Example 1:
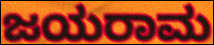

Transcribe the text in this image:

ಜಯರಾಮ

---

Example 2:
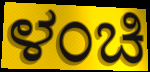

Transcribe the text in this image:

ಳಂಚಿ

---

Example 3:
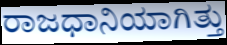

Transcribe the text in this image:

ರಾಜಧಾನಿಯಾಗಿತ್ತು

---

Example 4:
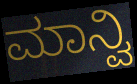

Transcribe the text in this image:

ಮಾನ್ವಿ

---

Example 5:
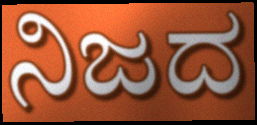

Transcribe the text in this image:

ನಿಜದ